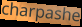
charpashe